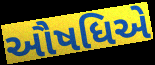
ઔષધિએ